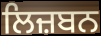
ਲਿਜ਼ਬਨ